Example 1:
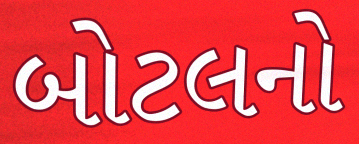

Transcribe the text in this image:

બોટલનો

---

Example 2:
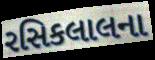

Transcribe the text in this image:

રસિકલાલના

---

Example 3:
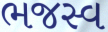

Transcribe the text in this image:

ભજસ્વ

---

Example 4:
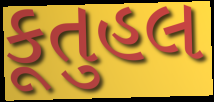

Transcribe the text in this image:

કૂતુહલ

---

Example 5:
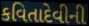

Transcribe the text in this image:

કવિતાદેવીની